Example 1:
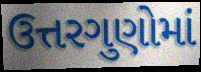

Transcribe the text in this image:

ઉત્તરગુણોમાં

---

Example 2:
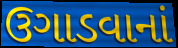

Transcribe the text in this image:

ઉગાડવાનાં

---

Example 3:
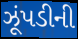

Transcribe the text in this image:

ઝૂંપડીની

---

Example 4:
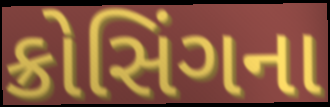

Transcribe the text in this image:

ક્રોસિંગના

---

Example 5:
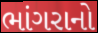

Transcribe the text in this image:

ભાંગરાનો